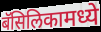
बॅसिलिकामध्ये